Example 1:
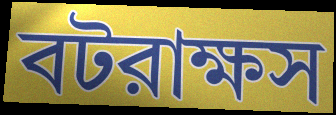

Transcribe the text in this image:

বটরাক্ষস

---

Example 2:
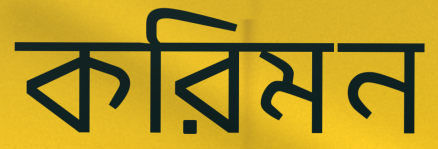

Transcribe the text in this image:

করিমন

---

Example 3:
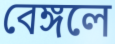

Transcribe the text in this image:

বেঙ্গলে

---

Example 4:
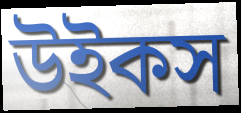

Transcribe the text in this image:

উইকস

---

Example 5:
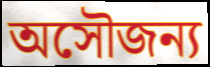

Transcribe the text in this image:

অসৌজন্য